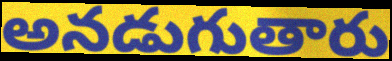
అనడుగుతారు